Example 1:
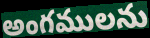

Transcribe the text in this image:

అంగములను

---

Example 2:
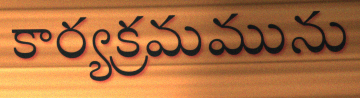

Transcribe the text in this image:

కార్యక్రమమును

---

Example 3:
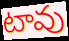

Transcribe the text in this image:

టావు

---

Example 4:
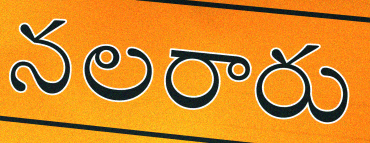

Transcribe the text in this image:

నలరారు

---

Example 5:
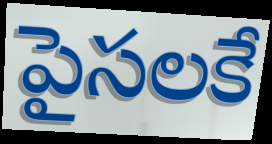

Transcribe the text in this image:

పైసలకే